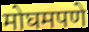
मोघमपणे